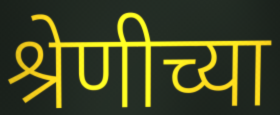
श्रेणीच्या